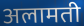
अलामती